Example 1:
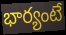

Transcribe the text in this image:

భార్యంటే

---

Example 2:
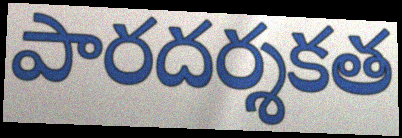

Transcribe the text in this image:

పారదర్శకత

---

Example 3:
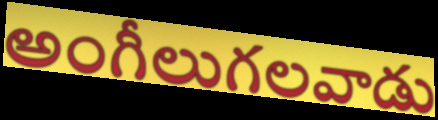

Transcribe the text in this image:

అంగీలుగలవాడు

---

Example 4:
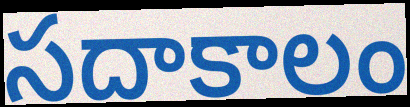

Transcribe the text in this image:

సదాకాలం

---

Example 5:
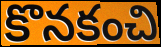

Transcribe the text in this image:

కొనకంచి